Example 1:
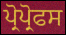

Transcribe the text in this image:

ਪ੍ਰੋਪ੍ਰੋਫਸ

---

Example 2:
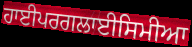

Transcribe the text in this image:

ਹਾਈਪਰਗਲਾਈਸਿਮੀਆ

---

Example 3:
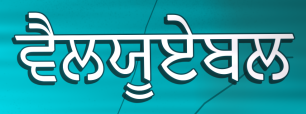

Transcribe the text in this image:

ਵੈਲਯੂਏਬਲ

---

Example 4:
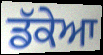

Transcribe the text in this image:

ਡੱਕੇਆ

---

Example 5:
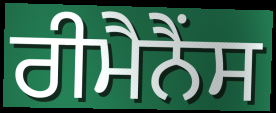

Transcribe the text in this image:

ਰੀਮੈਨੈਂਸ